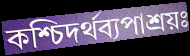
কশ্চিদর্থব্যপাশ্রয়ঃ